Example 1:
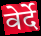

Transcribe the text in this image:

वेर्दे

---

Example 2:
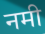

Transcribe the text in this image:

नमी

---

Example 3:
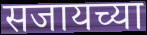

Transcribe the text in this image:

सजायच्या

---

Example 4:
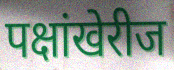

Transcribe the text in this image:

पक्षांखेरीज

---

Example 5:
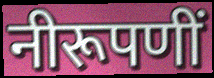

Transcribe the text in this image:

नीरूपणीं